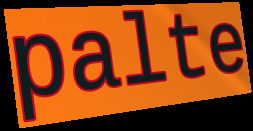
palte